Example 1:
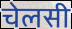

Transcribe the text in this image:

चेलसी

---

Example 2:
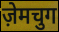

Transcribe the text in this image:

ज़ेमचुग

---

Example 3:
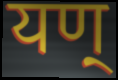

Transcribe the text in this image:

यण्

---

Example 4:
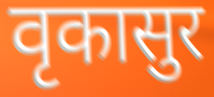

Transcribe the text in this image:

वृकासुर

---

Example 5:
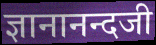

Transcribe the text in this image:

ज्ञानानन्दजी